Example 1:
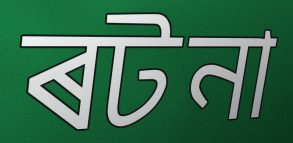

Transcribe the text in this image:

ৰটনা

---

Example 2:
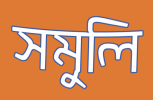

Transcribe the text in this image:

সমুলি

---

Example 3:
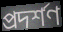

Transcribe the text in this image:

প্ৰদৰ্শণ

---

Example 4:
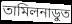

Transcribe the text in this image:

তামিলনাডুত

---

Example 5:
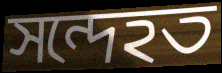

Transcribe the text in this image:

সন্দেহত